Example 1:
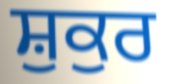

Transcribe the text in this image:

ਸ਼ੁਕੁਰ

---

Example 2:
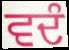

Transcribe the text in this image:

ਵਦੰ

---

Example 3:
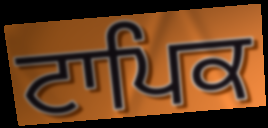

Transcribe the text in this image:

ਟਾਪਿਕ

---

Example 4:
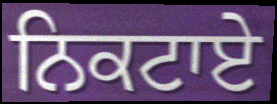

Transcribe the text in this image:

ਨਿਕਟਾਏ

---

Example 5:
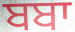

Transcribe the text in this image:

ਬਬਾ